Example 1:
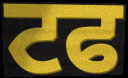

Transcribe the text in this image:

ਟਫ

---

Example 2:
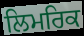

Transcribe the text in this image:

ਲਿਮਰਿਕ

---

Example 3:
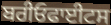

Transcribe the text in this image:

ਬਰੀਓਫਾਈਟਸ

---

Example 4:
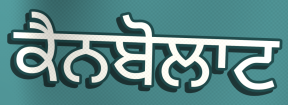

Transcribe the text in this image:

ਕੈਨਬੋਲਾਟ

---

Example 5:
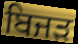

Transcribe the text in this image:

ਬਿਜੜ